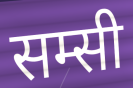
सम्सी